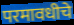
परमावधीचे